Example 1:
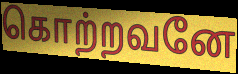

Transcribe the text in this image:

கொற்றவனே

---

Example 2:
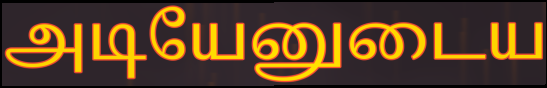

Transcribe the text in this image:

அடியேனுடைய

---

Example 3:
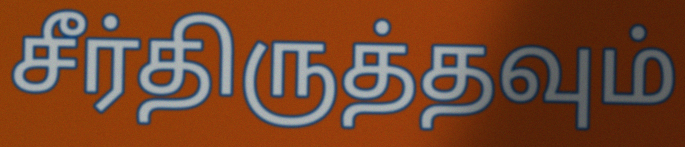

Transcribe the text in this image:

சீர்திருத்தவும்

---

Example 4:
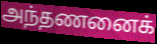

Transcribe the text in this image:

அந்தணனைக்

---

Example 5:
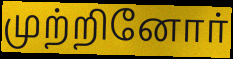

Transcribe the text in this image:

முற்றினோர்